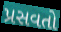
પ્રસવતો